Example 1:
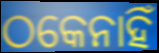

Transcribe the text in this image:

ଠକେନାହିଁ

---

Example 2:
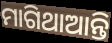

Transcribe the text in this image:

ମାଗିଥାଆନ୍ତି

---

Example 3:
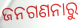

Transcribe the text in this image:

ଜନଗଣନାରୁ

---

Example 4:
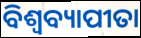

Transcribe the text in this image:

ବିଶ୍ୱବ୍ୟାପୀତା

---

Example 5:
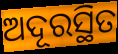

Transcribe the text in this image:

ଅଦୂରସ୍ଥିତ